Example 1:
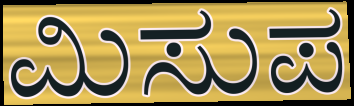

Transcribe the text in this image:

ಮಿಸುಪ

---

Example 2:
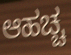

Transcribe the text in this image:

ಆಹಚ್ಚ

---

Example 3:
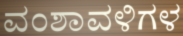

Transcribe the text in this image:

ವಂಶಾವಳಿಗಳ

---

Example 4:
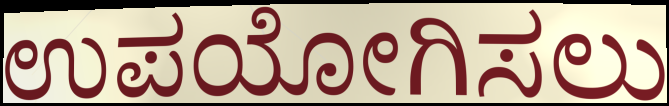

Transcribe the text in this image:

ಉಪಯೋಗಿಸಲು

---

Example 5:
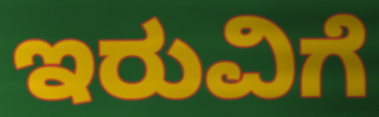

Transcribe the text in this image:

ಇರುವಿಗೆ